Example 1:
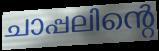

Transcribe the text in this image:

ചാപ്പലിന്റെ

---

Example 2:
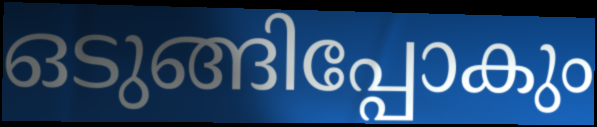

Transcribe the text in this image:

ഒടുങ്ങിപ്പോകും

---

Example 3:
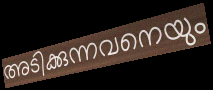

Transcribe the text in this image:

അടിക്കുന്നവനെയും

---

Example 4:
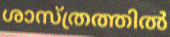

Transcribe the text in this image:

ശാസ്ത്രത്തിൽ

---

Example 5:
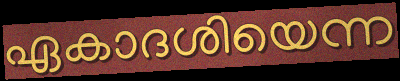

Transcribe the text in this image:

ഏകാദശിയെന്ന